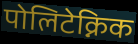
पोलिटेक्निक